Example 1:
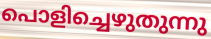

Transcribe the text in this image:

പൊളിച്ചെഴുതുന്നു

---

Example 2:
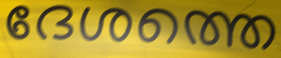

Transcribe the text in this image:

ദേശത്തെ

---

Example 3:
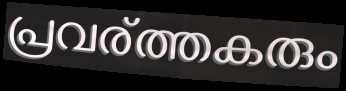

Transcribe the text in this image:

പ്രവര്ത്തകരും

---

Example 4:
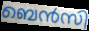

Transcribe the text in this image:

ബെൻസി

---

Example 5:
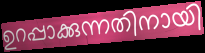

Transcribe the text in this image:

ഉറപ്പാക്കുന്നതിനായി